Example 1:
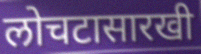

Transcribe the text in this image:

लोचटासारखी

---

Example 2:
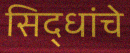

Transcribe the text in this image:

सिद्धांचे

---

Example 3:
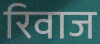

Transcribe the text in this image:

रिवाज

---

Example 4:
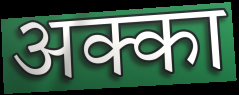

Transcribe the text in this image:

अक्का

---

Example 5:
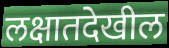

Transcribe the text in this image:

लक्षातदेखील